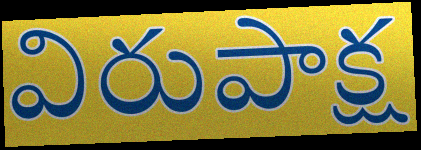
విరుపాక్ష